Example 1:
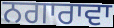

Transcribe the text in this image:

ਨਗਾਰਾਵਾ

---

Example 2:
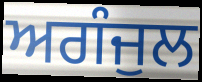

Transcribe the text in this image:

ਅਗੰਜੁਲ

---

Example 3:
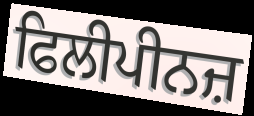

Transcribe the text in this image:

ਫਿਲੀਪੀਨਜ਼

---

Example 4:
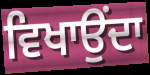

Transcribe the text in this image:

ਵਿਖਾਉਂਦਾ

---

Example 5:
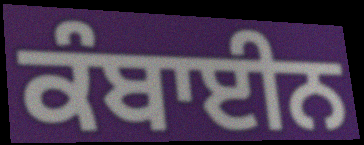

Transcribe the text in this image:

ਕੰਬਾਈਨ